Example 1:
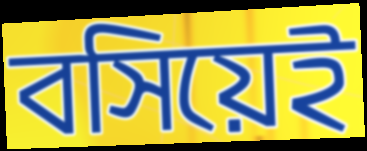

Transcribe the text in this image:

বসিয়েই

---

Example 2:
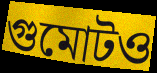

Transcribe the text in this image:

গুমোটও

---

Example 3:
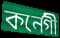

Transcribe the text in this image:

কর্নেগী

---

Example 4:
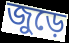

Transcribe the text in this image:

জুড়ে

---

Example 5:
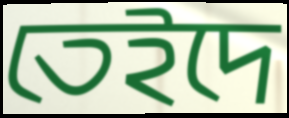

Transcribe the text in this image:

তেইদে